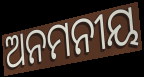
ଅନମନୀୟ